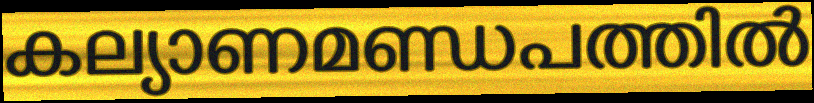
കല്യാണമണ്ഡപത്തിൽ